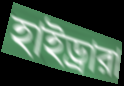
হাইড্রারা